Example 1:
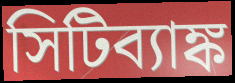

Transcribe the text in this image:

সিটিব্যাঙ্ক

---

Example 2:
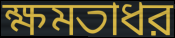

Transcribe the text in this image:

ক্ষমতাধর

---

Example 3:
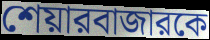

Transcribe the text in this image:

শেয়ারবাজারকে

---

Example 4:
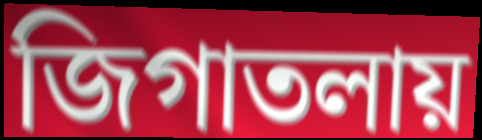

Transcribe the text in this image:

জিগাতলায়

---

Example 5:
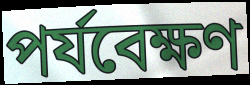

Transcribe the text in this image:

পর্যবেক্ষণ